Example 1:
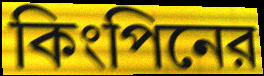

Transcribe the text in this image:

কিংপিনের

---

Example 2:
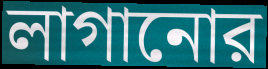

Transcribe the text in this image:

লাগানোর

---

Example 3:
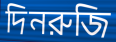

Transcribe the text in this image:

দিনরুজি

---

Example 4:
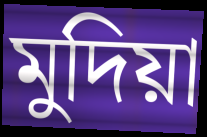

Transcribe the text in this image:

মুদিয়া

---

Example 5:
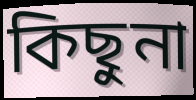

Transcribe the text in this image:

কিছুনা